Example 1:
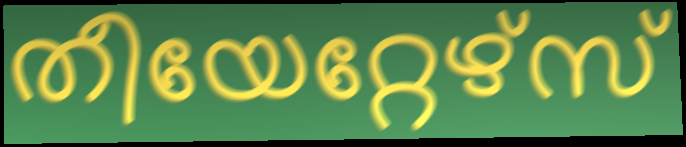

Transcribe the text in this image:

തീയേറ്റേഴ്സ്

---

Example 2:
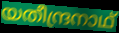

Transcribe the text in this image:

യതീന്ദ്രനാഥ്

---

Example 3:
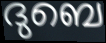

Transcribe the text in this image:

ദുബെ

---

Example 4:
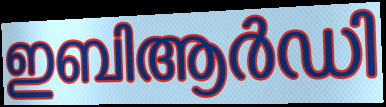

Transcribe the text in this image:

ഇബിആർഡി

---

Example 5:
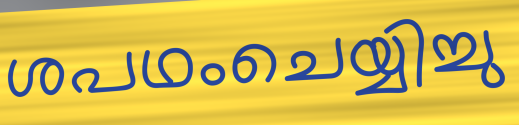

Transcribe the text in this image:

ശപഥംചെയ്യിച്ചു